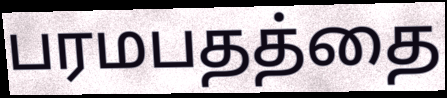
பரமபதத்தை